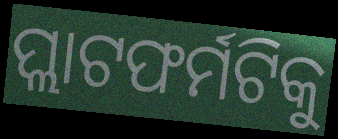
ପ୍ଲାଟଫର୍ମଟିକୁ